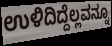
ಉಳಿದಿದ್ದೆಲ್ಲವನ್ನೂ